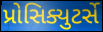
પ્રોસિક્યુટર્સે